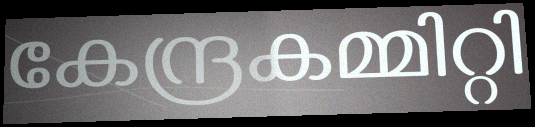
കേന്ദ്രകമ്മിറ്റി